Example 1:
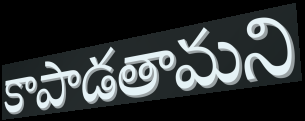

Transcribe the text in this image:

కాపాడతామని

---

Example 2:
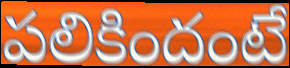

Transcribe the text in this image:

పలికిందంటే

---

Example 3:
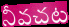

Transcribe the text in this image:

నీవచట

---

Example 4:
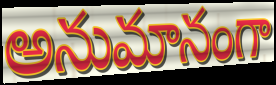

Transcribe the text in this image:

అనుమానంగా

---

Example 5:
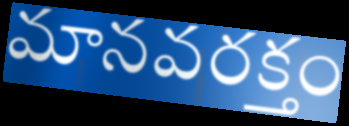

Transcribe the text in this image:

మానవరక్తం